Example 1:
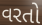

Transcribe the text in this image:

વરતો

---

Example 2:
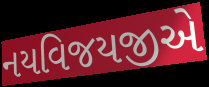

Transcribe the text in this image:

નયવિજયજીએ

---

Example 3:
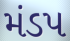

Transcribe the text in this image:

મંડપ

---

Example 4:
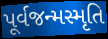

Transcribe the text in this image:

પૂર્વજન્મસ્મૃતિ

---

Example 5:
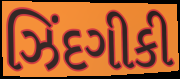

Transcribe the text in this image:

ઝિંદગીકી